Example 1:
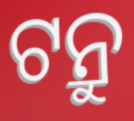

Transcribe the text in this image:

ଟନ୍ରୁ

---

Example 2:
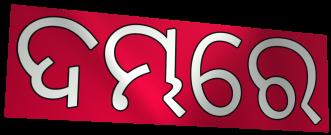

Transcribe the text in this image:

ଦମ୍ଭରେ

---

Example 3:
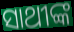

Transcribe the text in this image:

ସାଥୀଙ୍କ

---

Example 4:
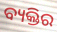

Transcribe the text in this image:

ବ୍ୟକ୍ତିର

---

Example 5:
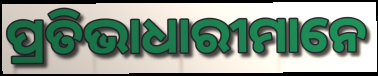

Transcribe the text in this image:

ପ୍ରତିଭାଧାରୀମାନେ